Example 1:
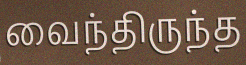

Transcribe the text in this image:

வைந்திருந்த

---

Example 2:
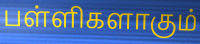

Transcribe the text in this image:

பள்ளிகளாகும்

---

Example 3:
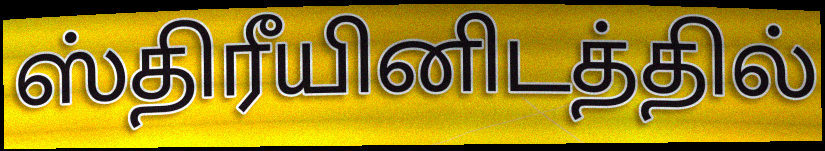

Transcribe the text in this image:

ஸ்திரீயினிடத்தில்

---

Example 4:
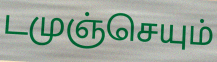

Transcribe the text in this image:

டமுஞ்செயும்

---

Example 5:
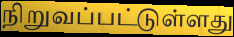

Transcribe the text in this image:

நிறுவப்பட்டுள்ளது